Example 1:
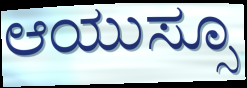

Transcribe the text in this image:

ಆಯುಸ್ಸೂ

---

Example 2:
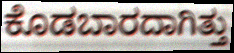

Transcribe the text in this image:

ಕೊಡಬಾರದಾಗಿತ್ತು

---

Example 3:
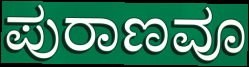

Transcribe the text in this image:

ಪುರಾಣವೂ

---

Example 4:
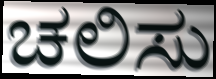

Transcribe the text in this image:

ಚಲಿಸು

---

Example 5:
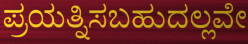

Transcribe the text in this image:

ಪ್ರಯತ್ನಿಸಬಹುದಲ್ಲವೇ